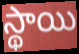
స్థాయి